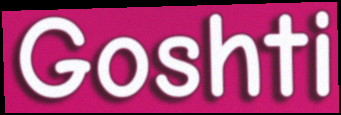
Goshti